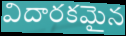
విదారకమైన